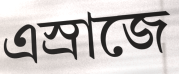
এস্রাজে